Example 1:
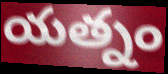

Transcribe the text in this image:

యత్నం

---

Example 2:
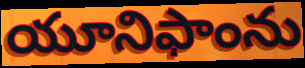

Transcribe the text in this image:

యూనిఫాంను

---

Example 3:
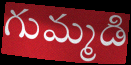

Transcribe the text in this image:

గుమ్మడి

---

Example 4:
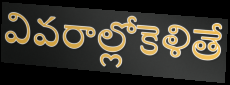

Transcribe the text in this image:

వివరాల్లోకెళితే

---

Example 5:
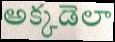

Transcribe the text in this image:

అక్కడెలా